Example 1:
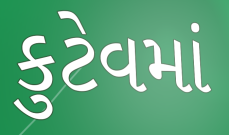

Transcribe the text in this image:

કુટેવમાં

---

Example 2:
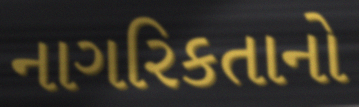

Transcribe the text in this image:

નાગરિકતાનો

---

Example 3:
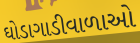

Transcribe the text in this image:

ઘોડાગાડીવાળાઓ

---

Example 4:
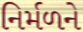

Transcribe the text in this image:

નિર્મળને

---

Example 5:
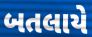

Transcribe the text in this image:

બતલાયે